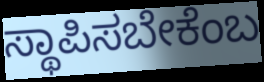
ಸ್ಥಾಪಿಸಬೇಕೆಂಬ